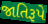
જાતિરૂપે